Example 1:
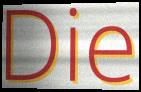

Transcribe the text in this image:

Die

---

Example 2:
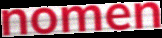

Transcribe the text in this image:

nomen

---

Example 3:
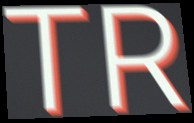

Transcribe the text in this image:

TR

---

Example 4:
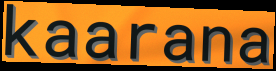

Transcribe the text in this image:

kaarana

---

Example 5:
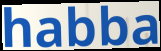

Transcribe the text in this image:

habba